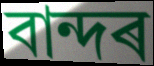
বান্দৰ